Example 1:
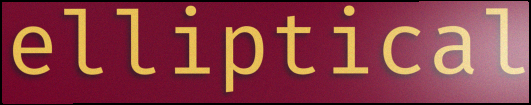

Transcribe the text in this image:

elliptical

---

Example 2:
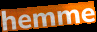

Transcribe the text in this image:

hemme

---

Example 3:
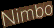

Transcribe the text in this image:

Nimbo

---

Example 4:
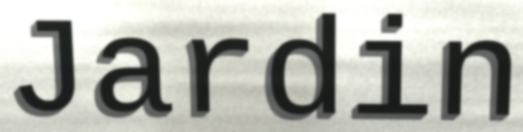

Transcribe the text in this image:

Jardin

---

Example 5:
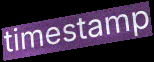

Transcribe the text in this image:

timestamp